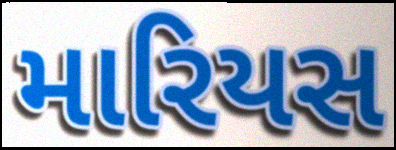
મારિયસ